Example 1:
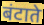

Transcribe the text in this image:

बंटाते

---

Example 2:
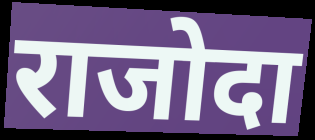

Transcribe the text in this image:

राजोदा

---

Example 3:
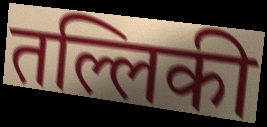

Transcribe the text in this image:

तल्लिकी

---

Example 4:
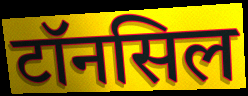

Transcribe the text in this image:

टॉनसिल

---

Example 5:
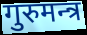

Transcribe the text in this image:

गुरुमन्त्र